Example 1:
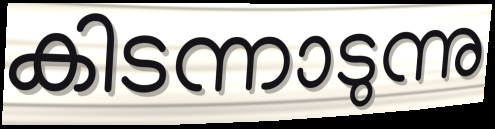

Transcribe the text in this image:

കിടന്നാടുന്നു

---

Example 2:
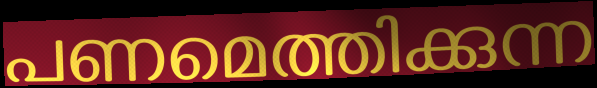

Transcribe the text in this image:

പണമെത്തിക്കുന്ന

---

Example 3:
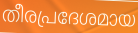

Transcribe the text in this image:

തീരപ്രദേശമായ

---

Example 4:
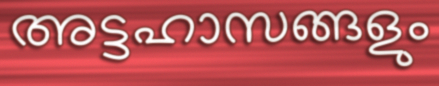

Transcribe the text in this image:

അട്ടഹാസങ്ങളും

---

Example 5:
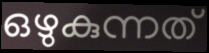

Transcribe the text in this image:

ഒഴുകുന്നത്